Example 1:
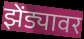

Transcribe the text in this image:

झेंड्यावर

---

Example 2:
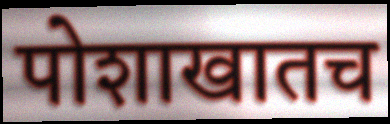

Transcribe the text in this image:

पोशाखातच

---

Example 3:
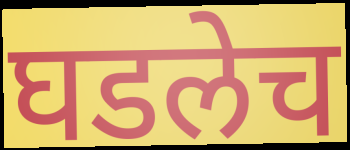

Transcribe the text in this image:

घडलेच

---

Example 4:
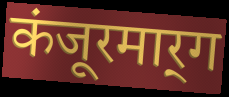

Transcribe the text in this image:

कंजूरमार्ग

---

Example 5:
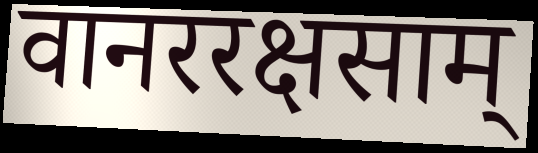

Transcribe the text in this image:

वानररक्षसाम्